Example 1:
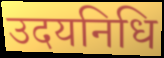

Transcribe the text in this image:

उदयनिधि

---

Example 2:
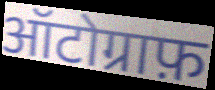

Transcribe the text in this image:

ऑटोग्राफ़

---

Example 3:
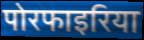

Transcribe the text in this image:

पोरफाइरिया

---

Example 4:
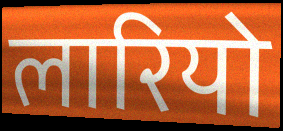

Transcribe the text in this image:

लारियो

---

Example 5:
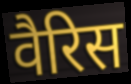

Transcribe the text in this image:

वैरिस